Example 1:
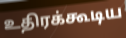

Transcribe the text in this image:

உதிரக்கூடிய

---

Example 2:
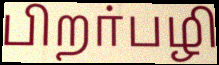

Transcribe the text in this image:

பிறர்பழி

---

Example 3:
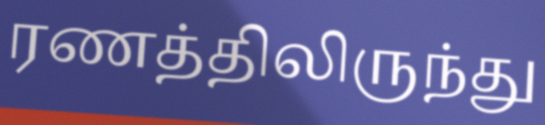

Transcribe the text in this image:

ரணத்திலிருந்து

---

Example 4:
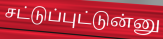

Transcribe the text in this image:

சட்டுப்புட்டுன்னு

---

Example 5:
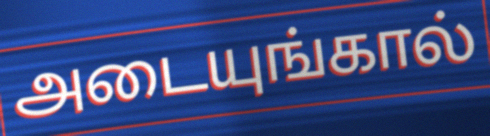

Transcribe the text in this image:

அடையுங்கால்